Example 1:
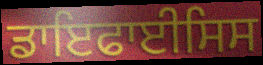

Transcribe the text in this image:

ਡਾਇਫਾਈਸਿਸ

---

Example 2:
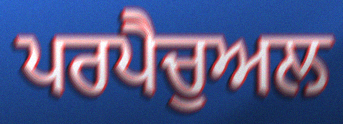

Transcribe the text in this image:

ਪਰਪੈਚੁਅਲ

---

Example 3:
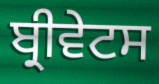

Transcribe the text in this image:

ਬ੍ਰੀਵੇਟਸ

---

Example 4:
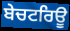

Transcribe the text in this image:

ਬੇਚਟਰਿਊ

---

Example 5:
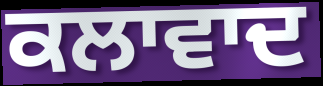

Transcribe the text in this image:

ਕਲਾਵਾਦ